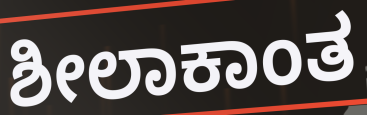
ಶೀಲಾಕಾಂತ